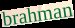
brahman